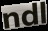
ndl